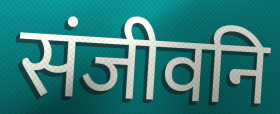
संजीवनि